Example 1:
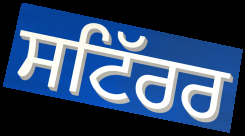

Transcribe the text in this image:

ਸਟਿੱਰਰ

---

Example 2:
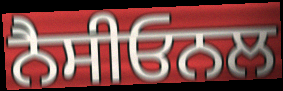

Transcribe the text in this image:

ਨੈਸੀਓਨਲ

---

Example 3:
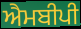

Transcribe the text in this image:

ਐਮਬੀਪੀ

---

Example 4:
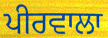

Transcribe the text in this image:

ਪੀਰਵਾਲਾ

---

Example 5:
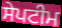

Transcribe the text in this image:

ਸੇਪਟੀਮ